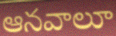
ఆనవాలూ